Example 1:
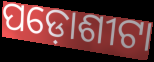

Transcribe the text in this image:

ପଡ଼ୋଶୀଟା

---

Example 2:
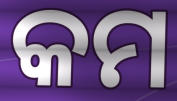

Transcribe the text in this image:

କମ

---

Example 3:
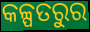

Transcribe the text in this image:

କଳ୍ପତରୁର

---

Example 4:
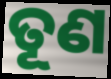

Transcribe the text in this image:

ତୂଣ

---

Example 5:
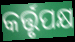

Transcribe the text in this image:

କର୍ତ୍ତୃପକ୍ଷ